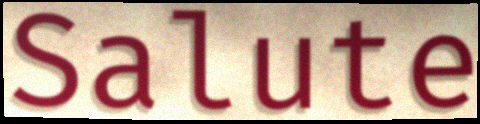
Salute